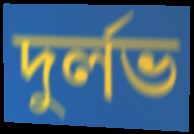
দুৰ্লভ